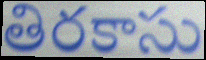
తిరకాసు